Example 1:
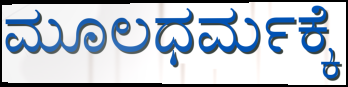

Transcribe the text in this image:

ಮೂಲಧರ್ಮಕ್ಕೆ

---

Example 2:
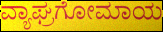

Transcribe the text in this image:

ವ್ಯಾಘ್ರಗೋಮಾಯ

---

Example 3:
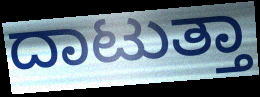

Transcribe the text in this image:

ದಾಟುತ್ತಾ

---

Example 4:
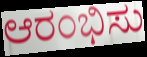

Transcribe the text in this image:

ಆರಂಭಿಸು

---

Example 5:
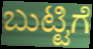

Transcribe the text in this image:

ಬುಟ್ಟಿಗೆ